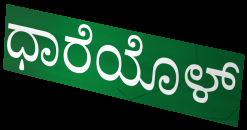
ಧಾರೆಯೊಳ್